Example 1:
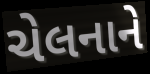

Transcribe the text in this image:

ચેલનાને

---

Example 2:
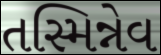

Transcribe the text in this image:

તસ્મિન્નેવ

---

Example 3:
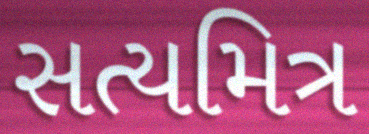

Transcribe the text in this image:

સત્યમિત્ર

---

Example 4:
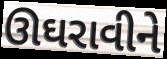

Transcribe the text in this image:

ઊઘરાવીને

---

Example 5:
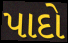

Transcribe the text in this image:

પાદો